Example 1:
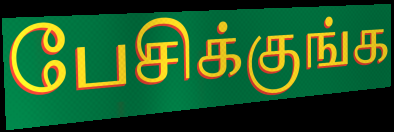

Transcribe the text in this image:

பேசிக்குங்க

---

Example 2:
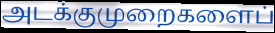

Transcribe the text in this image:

அடக்குமுறைகளைப்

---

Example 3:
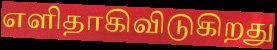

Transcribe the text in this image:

எளிதாகிவிடுகிறது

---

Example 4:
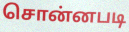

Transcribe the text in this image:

சொன்னபடி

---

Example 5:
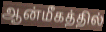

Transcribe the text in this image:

ஆன்மீகத்தில்